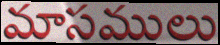
మాసములు